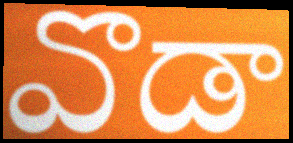
వొడా